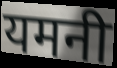
यमनी